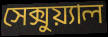
সেক্সুয়্যাল